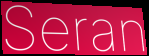
Seran